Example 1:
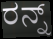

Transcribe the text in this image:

ರನ್ನ್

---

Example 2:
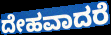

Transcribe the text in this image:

ದೇಹವಾದರೆ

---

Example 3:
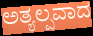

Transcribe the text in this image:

ಅತ್ಯಲ್ಪವಾದ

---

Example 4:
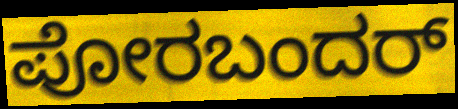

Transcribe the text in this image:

ಪೋರಬಂದರ್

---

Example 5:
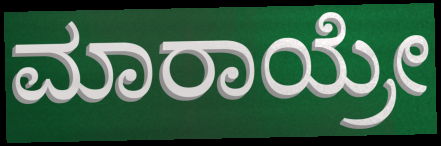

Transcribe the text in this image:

ಮಾರಾಯ್ರೇ